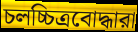
চলচ্চিত্রবোদ্ধারা